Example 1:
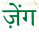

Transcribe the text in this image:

ज़ेंग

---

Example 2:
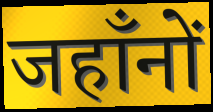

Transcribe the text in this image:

जहाँनों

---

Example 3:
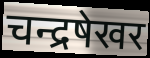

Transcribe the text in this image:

चन्द्रषेखर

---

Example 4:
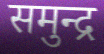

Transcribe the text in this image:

समुन्द्र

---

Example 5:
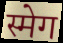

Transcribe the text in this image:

स्मेग